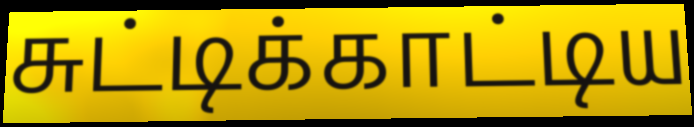
சுட்டிக்காட்டிய